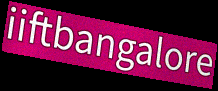
iiftbangalore